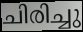
ചിരിച്ചു